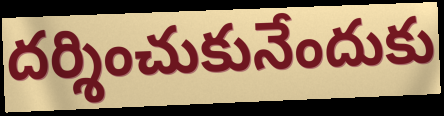
దర్శించుకునేందుకు